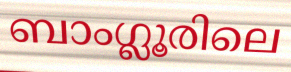
ബാംഗ്ലൂരിലെ